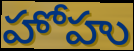
హోహు